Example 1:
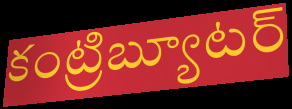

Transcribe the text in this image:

కంట్రిబ్యూటర్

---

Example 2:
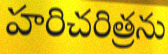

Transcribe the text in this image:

హరిచరిత్రను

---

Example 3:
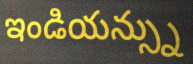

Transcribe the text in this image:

ఇండియన్స్ను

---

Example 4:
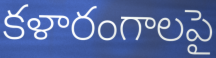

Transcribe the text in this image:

కళారంగాలపై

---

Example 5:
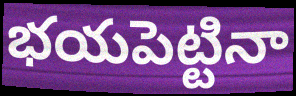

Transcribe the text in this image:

భయపెట్టినా